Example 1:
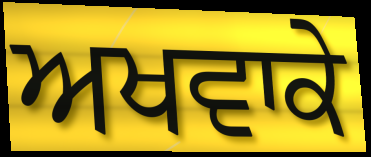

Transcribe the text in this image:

ਅਖਵਾਕੇ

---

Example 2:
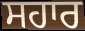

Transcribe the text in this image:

ਸਹਾਰ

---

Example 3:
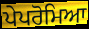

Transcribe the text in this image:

ਪੇਪਰੋਮਿਆ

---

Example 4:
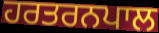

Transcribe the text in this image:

ਹਰਤਰਨਪਾਲ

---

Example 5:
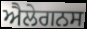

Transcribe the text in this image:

ਐਲੇਗਨਸ